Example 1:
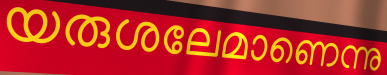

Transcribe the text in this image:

യരുശലേമാണെന്നു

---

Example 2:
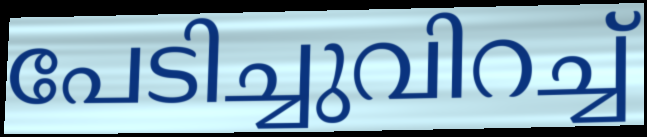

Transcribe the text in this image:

പേടിച്ചുവിറച്ച്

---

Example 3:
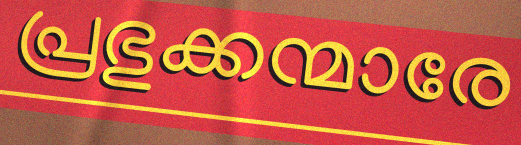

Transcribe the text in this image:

പ്രഭുക്കന്മാരേ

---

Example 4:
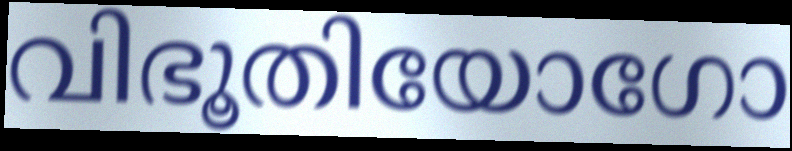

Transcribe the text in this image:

വിഭൂതിയോഗോ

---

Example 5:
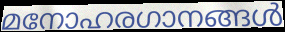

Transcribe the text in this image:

മനോഹരഗാനങ്ങൾ